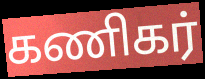
கணிகர்